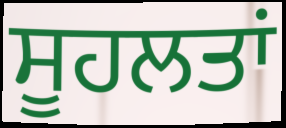
ਸੂਹਲਤਾਂ